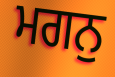
ਮਗਨੁ